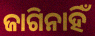
ଜାଗିନାହିଁ